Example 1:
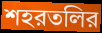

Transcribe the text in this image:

শহরতলির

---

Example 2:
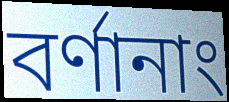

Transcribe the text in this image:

বর্ণানাং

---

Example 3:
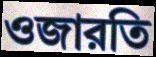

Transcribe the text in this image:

ওজারতি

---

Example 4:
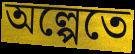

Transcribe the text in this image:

অল্পেতে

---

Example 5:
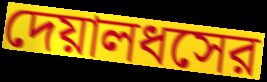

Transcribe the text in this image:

দেয়ালধসের